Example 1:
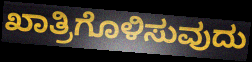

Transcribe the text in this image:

ಖಾತ್ರಿಗೊಳಿಸುವುದು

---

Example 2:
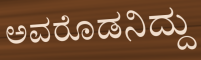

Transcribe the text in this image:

ಅವರೊಡನಿದ್ದು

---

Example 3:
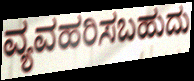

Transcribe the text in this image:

ವ್ಯವಹರಿಸಬಹುದು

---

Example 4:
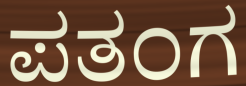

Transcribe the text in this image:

ಪತಂಗ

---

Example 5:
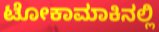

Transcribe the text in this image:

ಟೋಕಾಮಾಕಿನಲ್ಲಿ